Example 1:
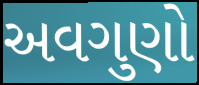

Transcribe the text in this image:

અવગુણો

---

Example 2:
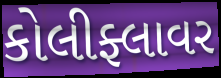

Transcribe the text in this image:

કોલીફ્લાવર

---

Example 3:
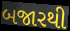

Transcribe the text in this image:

બજારથી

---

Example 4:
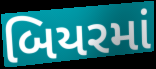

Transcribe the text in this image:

બિયરમાં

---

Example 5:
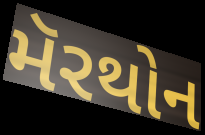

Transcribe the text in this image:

મૅરથોન